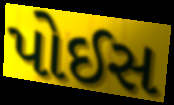
પોઈસ